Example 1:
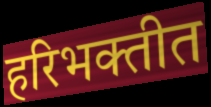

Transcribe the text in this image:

हरिभक्तीत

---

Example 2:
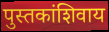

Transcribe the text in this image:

पुस्तकांशिवाय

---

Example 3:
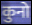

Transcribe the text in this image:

कुनो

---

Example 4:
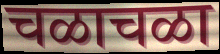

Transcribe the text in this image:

चळाचळा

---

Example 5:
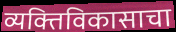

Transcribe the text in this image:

व्यक्तिविकासाचा